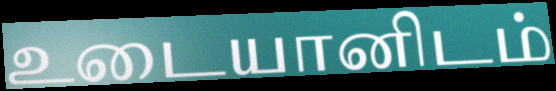
உடையானிடம்